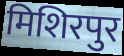
मिशिरपुर